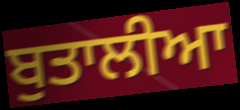
ਬੁਤਾਲੀਆ